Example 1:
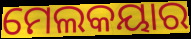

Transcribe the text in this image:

ମେଲକୟାର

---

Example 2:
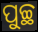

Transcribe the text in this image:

ପୁଚ୍ଛ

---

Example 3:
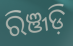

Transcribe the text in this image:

ରିଞ୍ଜଡ଼ି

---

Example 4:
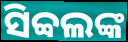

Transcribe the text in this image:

ସିବ୍ବଲଙ୍କ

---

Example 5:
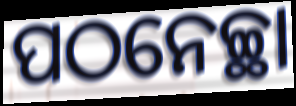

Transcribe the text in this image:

ପଠନେଚ୍ଛା